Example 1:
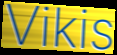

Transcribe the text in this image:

Vikis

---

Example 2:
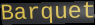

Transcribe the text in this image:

Barquet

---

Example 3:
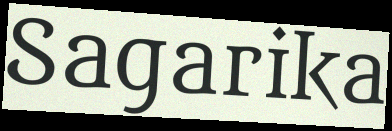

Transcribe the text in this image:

Sagarika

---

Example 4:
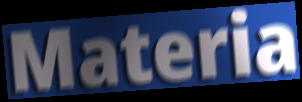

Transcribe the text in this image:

Materia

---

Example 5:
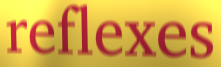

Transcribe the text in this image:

reflexes